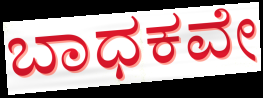
ಬಾಧಕವೇ